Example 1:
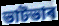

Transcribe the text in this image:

ভাটভাৰ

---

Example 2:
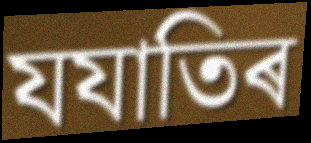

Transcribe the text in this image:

যযাতিৰ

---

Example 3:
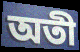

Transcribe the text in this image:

অতী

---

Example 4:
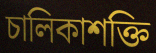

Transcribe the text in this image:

চালিকাশক্তি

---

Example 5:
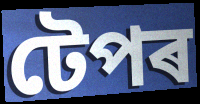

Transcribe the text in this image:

টেপৰ